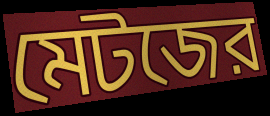
মেটজের